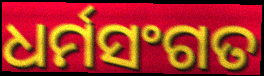
ଧର୍ମସଂଗତ